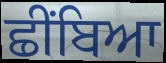
ਛੀਂਬਿਆ